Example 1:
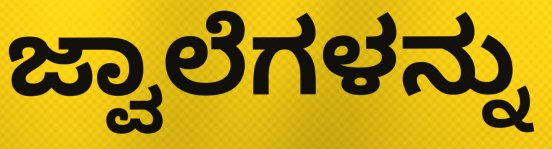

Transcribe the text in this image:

ಜ್ವಾಲೆಗಳನ್ನು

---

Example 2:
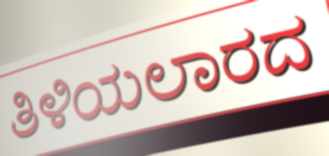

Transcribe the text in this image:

ತಿಳಿಯಲಾರದ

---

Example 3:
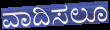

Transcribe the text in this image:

ವಾದಿಸಲೂ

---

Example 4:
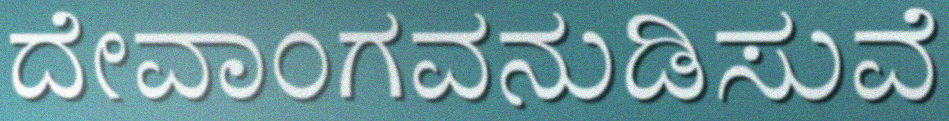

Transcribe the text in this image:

ದೇವಾಂಗವನುಡಿಸುವೆ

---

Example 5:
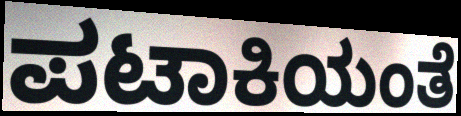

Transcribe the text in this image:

ಪಟಾಕಿಯಂತೆ